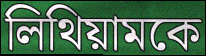
লিথিয়ামকে